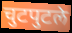
चुटपुटले